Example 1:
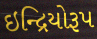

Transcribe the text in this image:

ઇન્દ્રિયોરૂપ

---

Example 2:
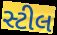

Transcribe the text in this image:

સ્ટીલ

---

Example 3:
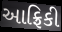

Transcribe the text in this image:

આફ્રિકી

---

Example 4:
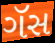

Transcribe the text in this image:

ગૅસ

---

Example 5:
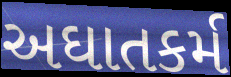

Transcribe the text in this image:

અઘાતકર્મ